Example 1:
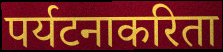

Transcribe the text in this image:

पर्यटनाकरिता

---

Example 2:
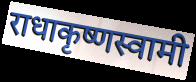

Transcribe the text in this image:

राधाकृष्णस्वामी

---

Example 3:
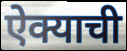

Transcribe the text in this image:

ऐक्याची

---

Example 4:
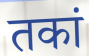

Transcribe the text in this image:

तकां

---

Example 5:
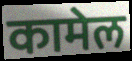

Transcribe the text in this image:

कामेल